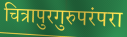
चित्रापुरगुरुपरंपरा